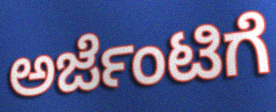
ಅರ್ಜೆಂಟಿಗೆ